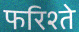
फरिश्ते